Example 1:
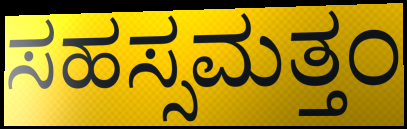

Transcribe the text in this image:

ಸಹಸ್ಸಮತ್ತಂ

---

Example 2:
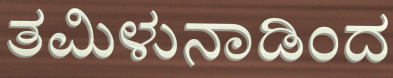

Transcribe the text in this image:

ತಮಿಳುನಾಡಿಂದ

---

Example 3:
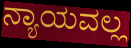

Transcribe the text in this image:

ನ್ಯಾಯವಲ್ಲ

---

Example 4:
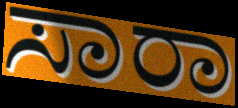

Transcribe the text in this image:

ಸಾರಾ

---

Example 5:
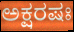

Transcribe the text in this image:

ಅಕ್ಷರಷಃ